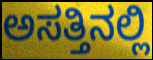
ಅಸತ್ತಿನಲ್ಲಿ